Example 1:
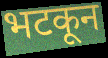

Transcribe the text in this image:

भटकून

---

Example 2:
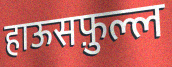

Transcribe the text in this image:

हाऊसफ़ुल्ल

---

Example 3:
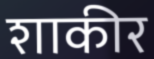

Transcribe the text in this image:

शाकीर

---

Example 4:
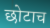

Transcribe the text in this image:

छोटाच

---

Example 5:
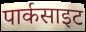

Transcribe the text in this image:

पार्कसाइट